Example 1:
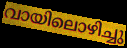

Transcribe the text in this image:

വായിലൊഴിച്ചു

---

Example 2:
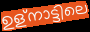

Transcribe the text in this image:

ഉള്നാട്ടിലെ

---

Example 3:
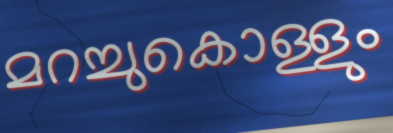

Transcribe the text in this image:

മറച്ചുകൊള്ളും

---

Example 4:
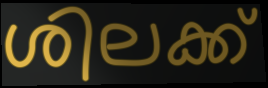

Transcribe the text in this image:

ശിലക്ക്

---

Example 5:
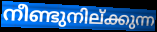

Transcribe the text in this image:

നീണ്ടുനില്ക്കുന്ന